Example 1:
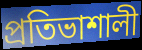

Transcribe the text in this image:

প্ৰতিভাশালী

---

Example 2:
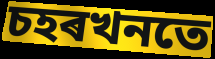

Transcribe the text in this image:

চহৰখনতে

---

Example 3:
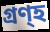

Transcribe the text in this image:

গ্ৰণ্হ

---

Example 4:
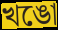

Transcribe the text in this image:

খঙো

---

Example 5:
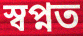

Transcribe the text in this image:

স্বপ্নত